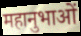
महानुभाओं